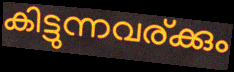
കിട്ടുന്നവര്ക്കും